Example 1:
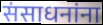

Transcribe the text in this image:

संसाधनांना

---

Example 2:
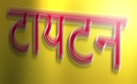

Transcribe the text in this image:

टायटन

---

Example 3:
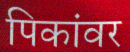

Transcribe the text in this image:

पिकांवर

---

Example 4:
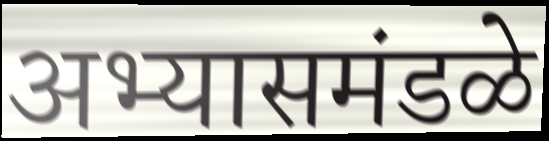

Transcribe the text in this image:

अभ्यासमंडळे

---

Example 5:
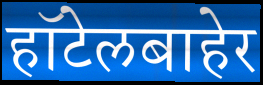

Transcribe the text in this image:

हॉटेलबाहेर